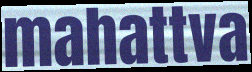
mahattva